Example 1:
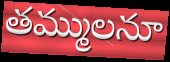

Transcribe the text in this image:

తమ్ములనూ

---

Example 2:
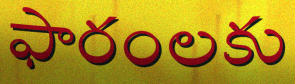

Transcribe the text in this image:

ఫారంలకు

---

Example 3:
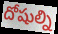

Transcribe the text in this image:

దోషుల్ని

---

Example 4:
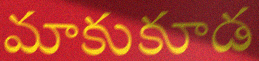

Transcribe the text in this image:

మాకుకూడ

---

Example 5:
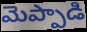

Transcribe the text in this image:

మెప్పాడి